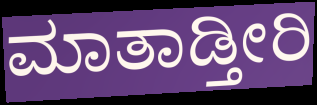
ಮಾತಾಡ್ತೀರಿ